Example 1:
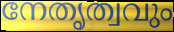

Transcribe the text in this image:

നേതൃത്വവും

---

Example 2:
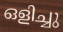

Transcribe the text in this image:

ഒളിച്ചു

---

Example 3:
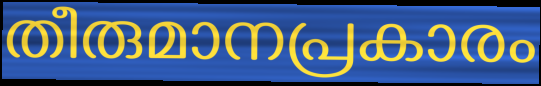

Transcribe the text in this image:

തീരുമാനപ്രകാരം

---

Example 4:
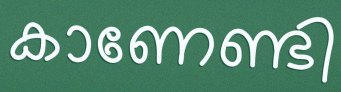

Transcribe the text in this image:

കാണേണ്ടി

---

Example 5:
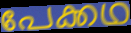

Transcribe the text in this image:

പേക്കഥ